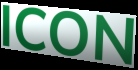
ICON